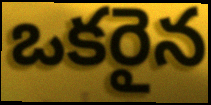
ఒకరైన